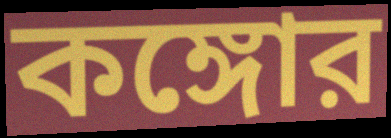
কঙ্গোর